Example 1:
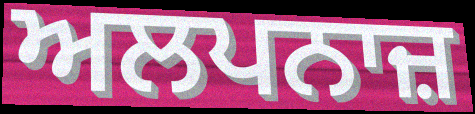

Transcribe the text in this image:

ਅਲਪਨਾਜ਼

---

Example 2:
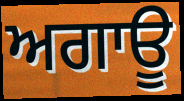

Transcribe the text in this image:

ਅਗਾਊ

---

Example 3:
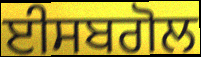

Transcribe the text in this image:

ਈਸਬਗੋਲ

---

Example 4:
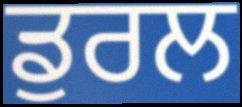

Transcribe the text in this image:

ਡੁਰਲ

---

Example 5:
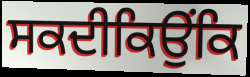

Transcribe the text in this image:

ਸਕਦੀਕਿਉਂਕਿ